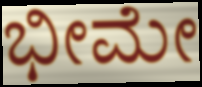
ಭೀಮೇ